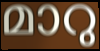
മാറു